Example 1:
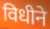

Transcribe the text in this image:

विधीने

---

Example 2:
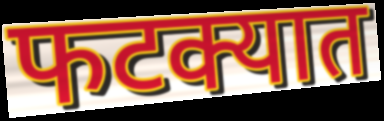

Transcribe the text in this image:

फटक्यात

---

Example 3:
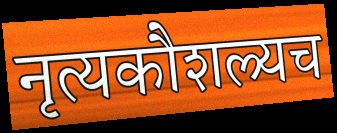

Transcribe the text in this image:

नृत्यकौशल्यच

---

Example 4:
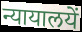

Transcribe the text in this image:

न्यायालयें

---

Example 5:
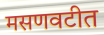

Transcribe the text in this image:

मसणवटीत